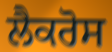
ਲੈਕਰੋਸ